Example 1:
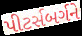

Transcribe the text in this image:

પીટર્સબર્ગને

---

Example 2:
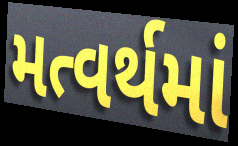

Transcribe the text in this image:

મત્વર્થમાં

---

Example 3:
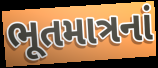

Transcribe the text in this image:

ભૂતમાત્રનાં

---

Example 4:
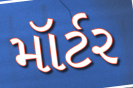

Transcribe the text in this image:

મૉર્ટર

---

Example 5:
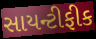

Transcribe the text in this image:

સાયન્ટીફીક